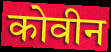
कोवीन